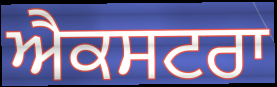
ਐਕਸਟਰਾ